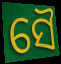
ସୈ